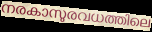
നരകാസുരവധത്തിലെ